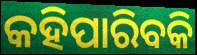
କହିପାରିବକି